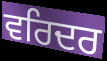
ਵਰਿਦਰ